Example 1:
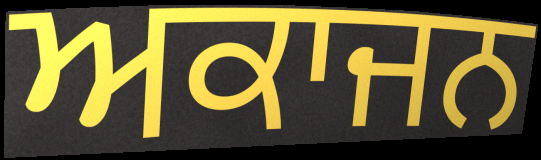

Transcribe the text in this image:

ਅਕਾਜਨ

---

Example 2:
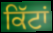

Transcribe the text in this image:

ਕਿੱਟਾਂ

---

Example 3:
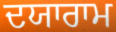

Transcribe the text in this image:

ਦਯਾਰਾਮ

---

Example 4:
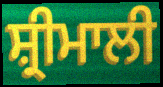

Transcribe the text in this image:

ਸ਼੍ਰੀਮਾਲੀ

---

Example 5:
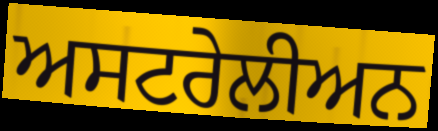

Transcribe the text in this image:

ਅਸਟਰੇਲੀਅਨ